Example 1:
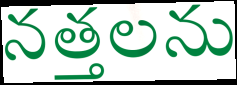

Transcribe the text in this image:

నత్తలను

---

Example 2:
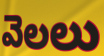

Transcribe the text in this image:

వెలలు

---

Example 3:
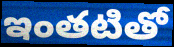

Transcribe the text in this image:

ఇంతటితో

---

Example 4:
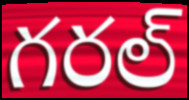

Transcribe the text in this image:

గరల్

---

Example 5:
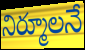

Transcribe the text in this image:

నిర్మూలనే